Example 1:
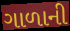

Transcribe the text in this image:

ગાળાની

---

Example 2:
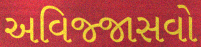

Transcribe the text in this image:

અવિજ્જાસવો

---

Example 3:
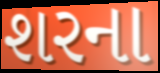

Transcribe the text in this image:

શરના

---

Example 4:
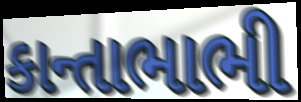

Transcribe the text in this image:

કાન્તાભાભી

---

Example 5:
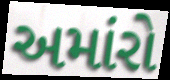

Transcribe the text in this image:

અમાંરો